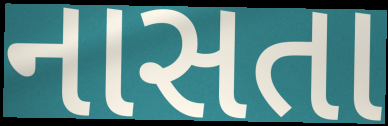
નાસતા